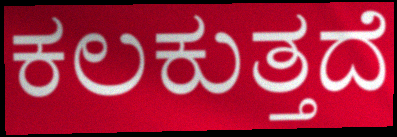
ಕಲಕುತ್ತದೆ